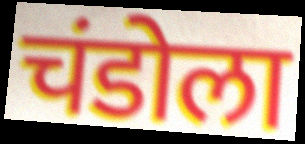
चंडोला